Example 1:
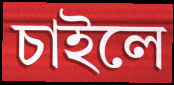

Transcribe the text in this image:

চাইলে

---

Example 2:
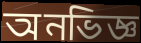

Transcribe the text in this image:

অনভিজ্ঞ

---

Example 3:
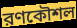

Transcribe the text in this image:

রণকৌশল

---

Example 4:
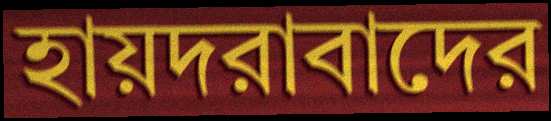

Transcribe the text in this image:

হায়দরাবাদের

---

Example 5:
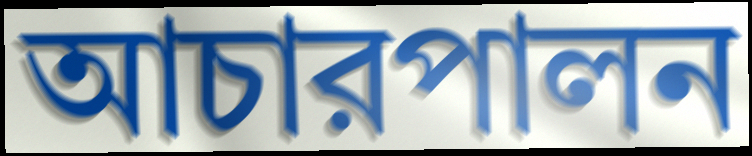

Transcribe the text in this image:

আচারপালন